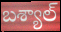
బశ్యాల్